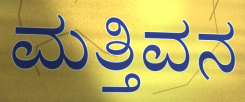
ಮತ್ತಿವನ